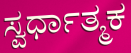
ಸ್ವರ್ಧಾತ್ಮಕ